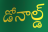
డోనాల్డ్